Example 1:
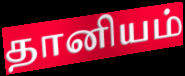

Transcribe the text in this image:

தானியம்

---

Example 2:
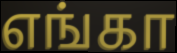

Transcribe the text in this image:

எங்கா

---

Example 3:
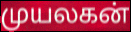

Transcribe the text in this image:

முயலகன்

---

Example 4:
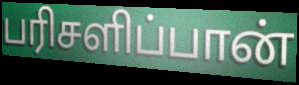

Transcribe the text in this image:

பரிசளிப்பான்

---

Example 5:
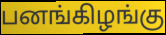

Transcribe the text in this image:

பனங்கிழங்கு